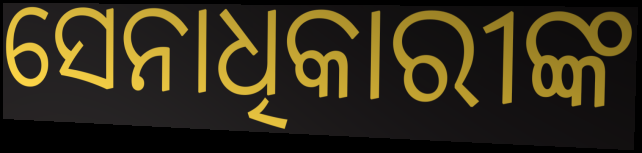
ସେନାଧିକାରୀଙ୍କ